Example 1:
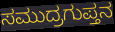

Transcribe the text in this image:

ಸಮುದ್ರಗುಪ್ತನ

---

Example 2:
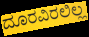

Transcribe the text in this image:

ದೂರವಿರಲಿಲ್ಲ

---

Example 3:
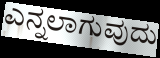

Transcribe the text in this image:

ಎನ್ನಲಾಗುವುದು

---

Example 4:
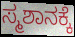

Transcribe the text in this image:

ಸ್ಮಶಾನಕ್ಕೆ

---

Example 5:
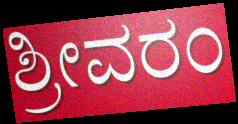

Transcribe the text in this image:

ಶ್ರೀವರಂ